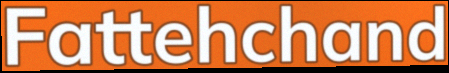
Fattehchand